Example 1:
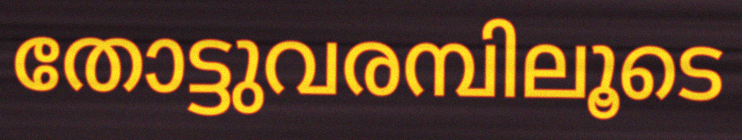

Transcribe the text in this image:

തോട്ടുവരമ്പിലൂടെ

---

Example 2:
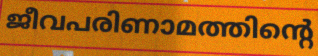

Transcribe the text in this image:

ജീവപരിണാമത്തിന്റെ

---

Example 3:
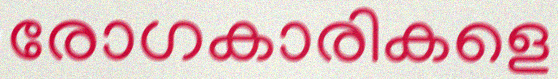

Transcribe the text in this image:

രോഗകാരികളെ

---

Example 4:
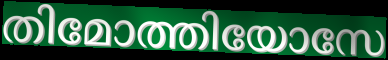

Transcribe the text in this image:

തിമോത്തിയോസേ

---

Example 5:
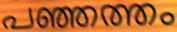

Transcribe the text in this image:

പഞ്ഞത്തം